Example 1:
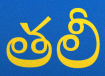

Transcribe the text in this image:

తలీ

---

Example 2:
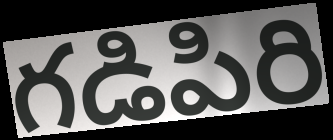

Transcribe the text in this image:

గడిపిరి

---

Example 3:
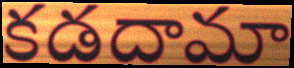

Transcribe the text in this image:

కడదామా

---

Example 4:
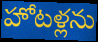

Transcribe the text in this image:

హోటళ్లను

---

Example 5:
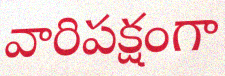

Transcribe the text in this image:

వారిపక్షంగా